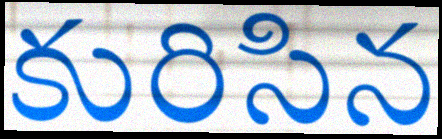
కురిసిన